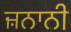
ਜ਼ਨਾਨੀ